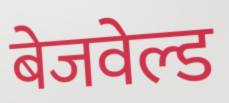
बेजवेल्ड